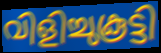
വിളിച്ചുകൂട്ടി